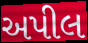
અપીલ